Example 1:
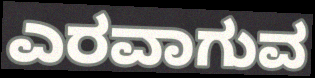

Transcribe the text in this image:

ಎರವಾಗುವ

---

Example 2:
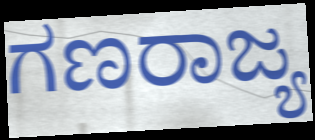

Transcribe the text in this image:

ಗಣರಾಜ್ಯ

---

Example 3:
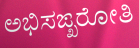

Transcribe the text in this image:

ಅಭಿಸಙ್ಖರೋತಿ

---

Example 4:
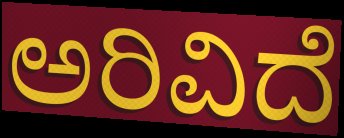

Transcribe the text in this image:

ಅರಿವಿದೆ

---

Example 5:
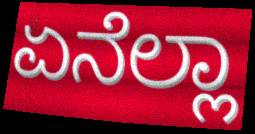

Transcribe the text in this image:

ಏನೆಲ್ಲಾ